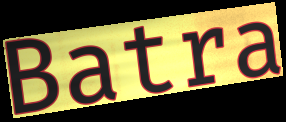
Batra